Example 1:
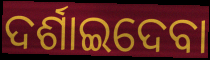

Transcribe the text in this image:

ଦର୍ଶାଇଦେବା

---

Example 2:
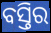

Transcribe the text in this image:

ବସ୍ତିର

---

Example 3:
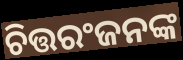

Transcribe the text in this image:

ଚିତ୍ତରଂଜନଙ୍କ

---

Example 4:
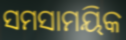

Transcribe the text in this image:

ସମସାମୟିକ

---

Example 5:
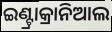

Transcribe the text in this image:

ଇଣ୍ଟ୍ରାକ୍ରାନିଆଲ